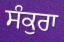
ਸੰਕੁਰਾ